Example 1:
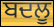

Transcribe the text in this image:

ਬਦਲੂ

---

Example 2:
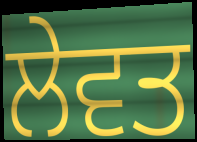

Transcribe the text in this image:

ਲੇਵਤ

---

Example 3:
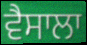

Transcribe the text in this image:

ਵੈਸਾਲਾ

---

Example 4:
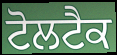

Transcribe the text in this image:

ਟੋਲਟੈਕ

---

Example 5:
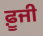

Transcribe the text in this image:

ਫ਼ੂਜੀ